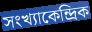
সংখ্যাকেন্দ্রিক